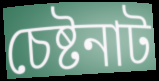
চেষ্টনাট